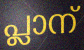
പ്ലാന്